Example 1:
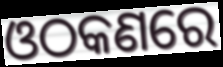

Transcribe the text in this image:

ଓଠକଣରେ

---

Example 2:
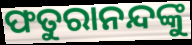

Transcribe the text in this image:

ଫତୁରାନନ୍ଦଙ୍କୁ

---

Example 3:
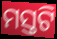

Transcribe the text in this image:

ମସ୍ତଟି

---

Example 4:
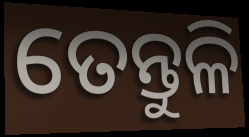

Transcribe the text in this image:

ତେନ୍ତୁଳି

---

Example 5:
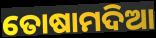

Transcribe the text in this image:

ତୋଷାମଦିଆ